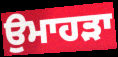
ਉਮਾਹੜਾ